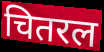
चितरल